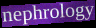
nephrology